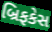
બ્રિફકેસ